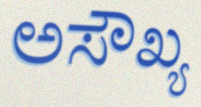
ಅಸೌಖ್ಯ